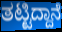
ತಟ್ಟಿದ್ದಾನೆ